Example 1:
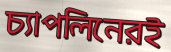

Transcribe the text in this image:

চ্যাপলিনেরই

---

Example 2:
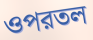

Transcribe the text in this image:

ওপরতল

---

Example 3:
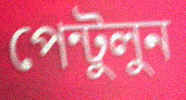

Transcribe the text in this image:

পেন্টুলুন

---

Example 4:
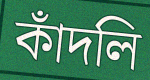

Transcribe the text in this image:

কাঁদলি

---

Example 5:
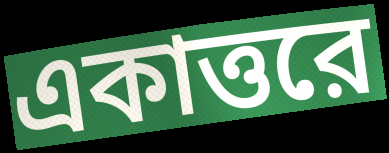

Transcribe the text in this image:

একাত্তরে